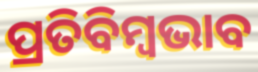
ପ୍ରତିବିମ୍ବଭାବ